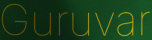
Guruvar